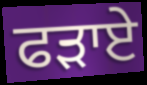
ਫੜਾਏ